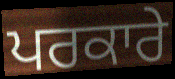
ਪਰਕਾਰੇ